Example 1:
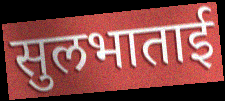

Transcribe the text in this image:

सुलभाताई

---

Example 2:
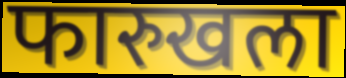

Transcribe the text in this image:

फारुखला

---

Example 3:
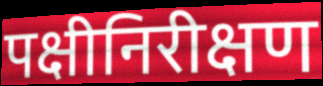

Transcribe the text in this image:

पक्षीनिरीक्षण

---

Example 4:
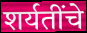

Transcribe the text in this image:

शर्यतींचे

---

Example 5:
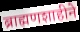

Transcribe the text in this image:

ब्राह्मणशाहीने